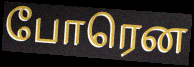
போரென